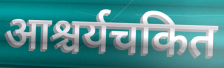
आश्चर्यचकित